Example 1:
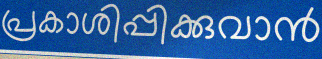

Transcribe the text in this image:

പ്രകാശിപ്പിക്കുവാൻ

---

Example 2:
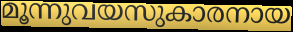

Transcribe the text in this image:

മൂന്നുവയസുകാരനായ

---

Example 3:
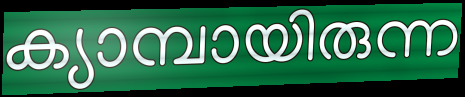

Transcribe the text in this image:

ക്യാമ്പായിരുന്ന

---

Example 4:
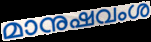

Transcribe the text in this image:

മാനുഷവംശ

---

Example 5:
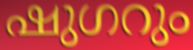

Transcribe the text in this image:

ഷുഗറും